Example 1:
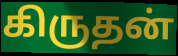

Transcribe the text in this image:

கிருதன்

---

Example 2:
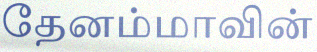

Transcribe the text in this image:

தேனம்மாவின்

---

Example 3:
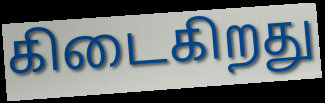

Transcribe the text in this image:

கிடைகிறது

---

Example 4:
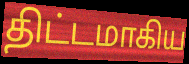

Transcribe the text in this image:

திட்டமாகிய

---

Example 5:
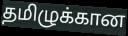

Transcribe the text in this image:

தமிழுக்கான